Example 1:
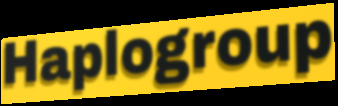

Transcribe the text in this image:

Haplogroup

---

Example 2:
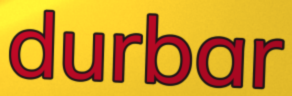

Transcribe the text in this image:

durbar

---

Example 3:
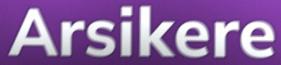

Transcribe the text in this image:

Arsikere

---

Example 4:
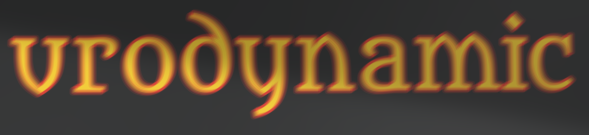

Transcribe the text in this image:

urodynamic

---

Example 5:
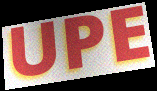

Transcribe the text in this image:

UPE